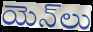
యెన్‌లు